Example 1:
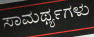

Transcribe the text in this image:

ಸಾಮರ್ಥ್ಯಗಳು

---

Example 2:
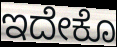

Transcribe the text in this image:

ಇದೇಕೊ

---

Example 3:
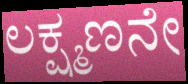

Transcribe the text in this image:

ಲಕ್ಷ್ಮಣನೇ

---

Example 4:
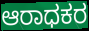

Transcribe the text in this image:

ಆರಾಧಕರ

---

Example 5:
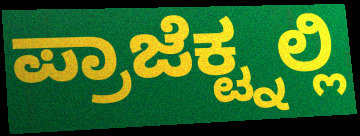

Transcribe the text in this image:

ಪ್ರಾಜೆಕ್ಟ್ನಲ್ಲಿ